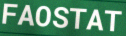
FAOSTAT